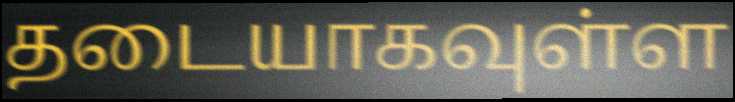
தடையாகவுள்ள